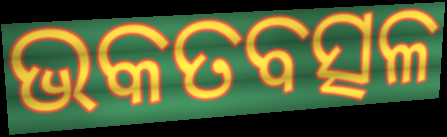
ଭକତବତ୍ସଳ